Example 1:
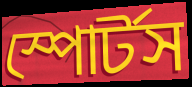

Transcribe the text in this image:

স্পোর্টস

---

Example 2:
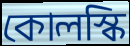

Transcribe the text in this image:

কোলস্কি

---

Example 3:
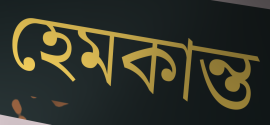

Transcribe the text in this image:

হেমকান্ত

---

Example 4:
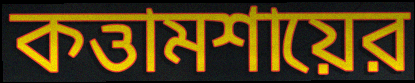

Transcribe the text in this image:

কত্তামশায়ের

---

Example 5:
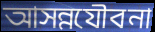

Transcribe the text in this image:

আসন্নযৌবনা